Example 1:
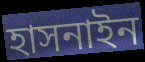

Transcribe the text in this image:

হাসনাইন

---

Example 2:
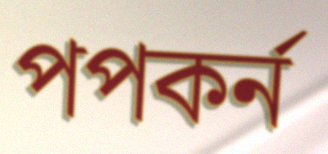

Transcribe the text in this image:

পপকর্ন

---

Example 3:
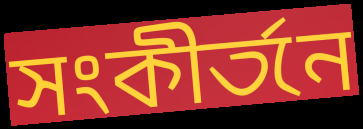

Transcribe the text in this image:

সংকীর্তনে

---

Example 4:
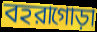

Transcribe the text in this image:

বহরাগোড়া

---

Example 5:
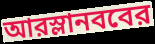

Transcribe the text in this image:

আরস্লানববের